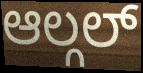
ಆಲ್ಗಲ್